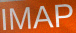
IMAP